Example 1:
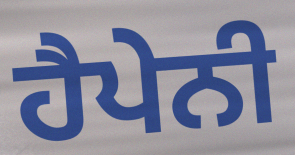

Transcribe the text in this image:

ਹੈਪੇਨੀ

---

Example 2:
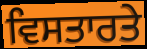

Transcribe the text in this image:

ਵਿਸਤਾਰਤੇ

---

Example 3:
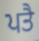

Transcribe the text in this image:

ਪਤੈ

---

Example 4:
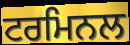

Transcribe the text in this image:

ਟਰਮਿਨਲ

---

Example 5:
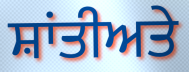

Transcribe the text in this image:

ਸ਼ਾਂਤੀਅਤੇ